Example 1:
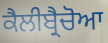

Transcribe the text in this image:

ਕੈਲੀਬ੍ਰੈਚੋਆ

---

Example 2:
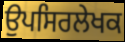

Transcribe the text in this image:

ਉਪਸਿਰਲੇਖਕ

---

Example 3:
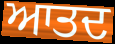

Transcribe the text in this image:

ਆਤਦ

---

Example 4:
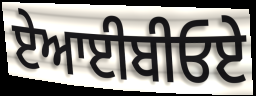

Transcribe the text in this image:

ਏਆਈਬੀਓਏ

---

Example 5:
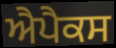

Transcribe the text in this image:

ਐਪੈਕਸ